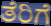
ತೆರಿಗೆ